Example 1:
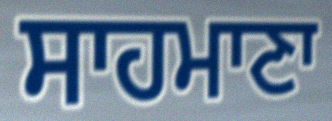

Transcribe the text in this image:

ਸਾਹਮਾਣਾ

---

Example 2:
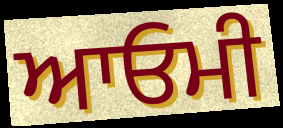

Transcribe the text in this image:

ਆਓਮੀ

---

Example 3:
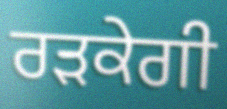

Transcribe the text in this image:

ਰੜਕੇਗੀ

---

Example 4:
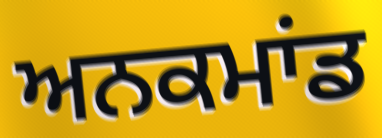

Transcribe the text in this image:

ਅਨਕਮਾਂਡ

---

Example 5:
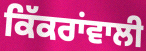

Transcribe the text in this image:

ਕਿੱਕਰਾਂਵਾਲੀ